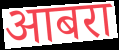
आबरा